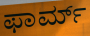
ಫಾರ್ಮ್